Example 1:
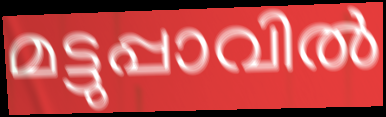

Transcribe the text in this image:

മട്ടുപ്പാവിൽ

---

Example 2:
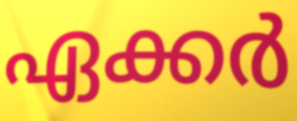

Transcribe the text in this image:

ഏക്കർ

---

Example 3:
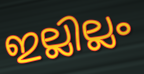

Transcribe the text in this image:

ഇല്ലില്ലം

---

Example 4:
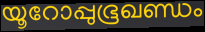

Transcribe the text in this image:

യൂറോപ്പുഭൂഖണ്ഡം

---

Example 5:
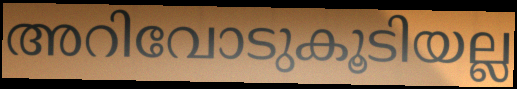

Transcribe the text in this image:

അറിവോടുകൂടിയല്ല